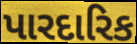
પારદારિક